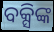
ବକ୍ସିଙ୍କ